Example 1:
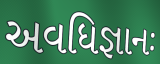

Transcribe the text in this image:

અવધિજ્ઞાનઃ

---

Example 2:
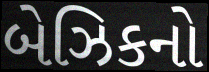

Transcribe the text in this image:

બેઝિકનો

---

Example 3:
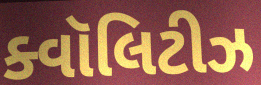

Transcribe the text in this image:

ક્વૉલિટીઝ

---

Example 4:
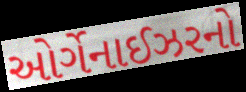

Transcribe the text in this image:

ઓર્ગેનાઈઝરનો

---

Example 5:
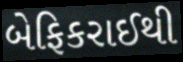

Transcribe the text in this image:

બેફિકરાઈથી